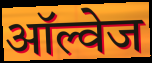
ऑल्वेज